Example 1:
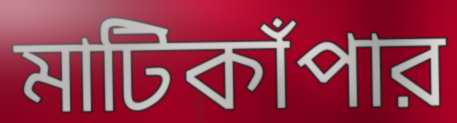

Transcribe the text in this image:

মাটিকাঁপার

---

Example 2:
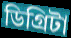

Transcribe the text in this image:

ডিগ্রিটা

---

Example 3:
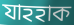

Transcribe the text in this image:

যাহহাক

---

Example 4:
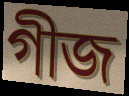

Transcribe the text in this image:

গীজ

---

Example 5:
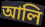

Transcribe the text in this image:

আলি